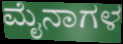
ಮೈನಾಗಳ